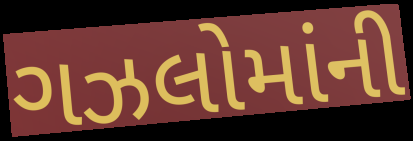
ગઝલોમાંની